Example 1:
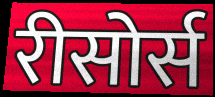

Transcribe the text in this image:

रीसोर्स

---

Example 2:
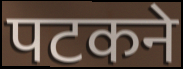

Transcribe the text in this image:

पटकने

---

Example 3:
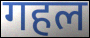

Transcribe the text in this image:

गहल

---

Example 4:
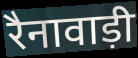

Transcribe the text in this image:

रैनावाड़ी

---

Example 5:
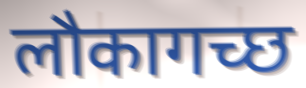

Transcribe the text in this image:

लौकागच्छ